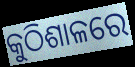
କୁଠିଶାଳରେ